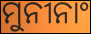
ମୁନୀନାଂ